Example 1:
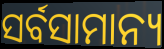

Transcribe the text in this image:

ସର୍ବସାମାନ୍ୟ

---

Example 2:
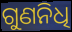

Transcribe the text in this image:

ଗୁଣନିଧି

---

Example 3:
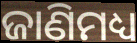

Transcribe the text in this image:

ଜାଣିମଧ୍ୟ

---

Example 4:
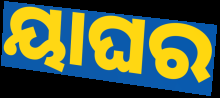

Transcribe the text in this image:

ୟାଘର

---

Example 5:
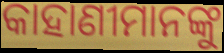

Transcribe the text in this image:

କାହାଣୀମାନଙ୍କୁ